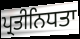
ਪ੍ਰਤੀਨਿਧਤਾ